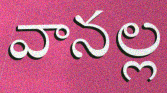
వానల్ల